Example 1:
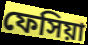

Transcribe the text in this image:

ফেসিয়া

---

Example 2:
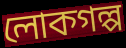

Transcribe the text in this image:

লোকগল্প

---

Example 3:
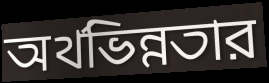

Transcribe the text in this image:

অর্থভিন্নতার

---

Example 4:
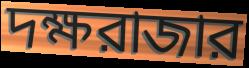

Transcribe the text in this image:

দক্ষরাজার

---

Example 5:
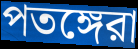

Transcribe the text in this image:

পতঙ্গেরা